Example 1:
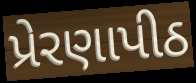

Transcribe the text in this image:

પ્રેરણાપીઠ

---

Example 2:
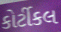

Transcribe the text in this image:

કોર્ટીકલ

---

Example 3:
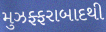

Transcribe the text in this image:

મુઝફ્ફરાબાદથી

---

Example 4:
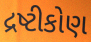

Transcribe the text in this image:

દ્રષ્ટીકોણ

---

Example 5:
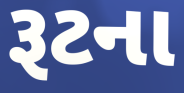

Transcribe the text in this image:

રૂટના